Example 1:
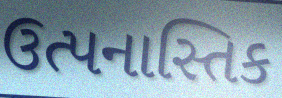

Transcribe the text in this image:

ઉત્પનાસ્તિક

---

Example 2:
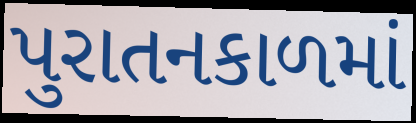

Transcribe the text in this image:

પુરાતનકાળમાં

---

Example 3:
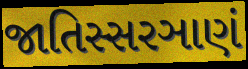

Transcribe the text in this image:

જાતિસ્સરઞાણં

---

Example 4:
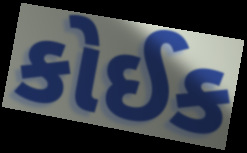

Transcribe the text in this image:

કોઈક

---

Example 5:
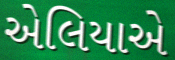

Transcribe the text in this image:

એલિયાએ